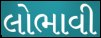
લોભાવી